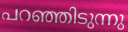
പറഞ്ഞിടുന്നു